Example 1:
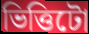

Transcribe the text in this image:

ভিত্তিটো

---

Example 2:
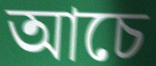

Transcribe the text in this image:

আচে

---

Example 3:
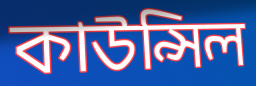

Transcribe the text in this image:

কাউন্সিল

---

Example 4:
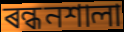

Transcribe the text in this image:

ৰন্ধনশালা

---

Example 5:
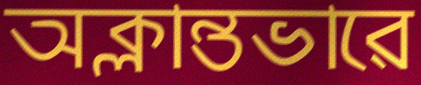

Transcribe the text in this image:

অক্লান্তভাৱে